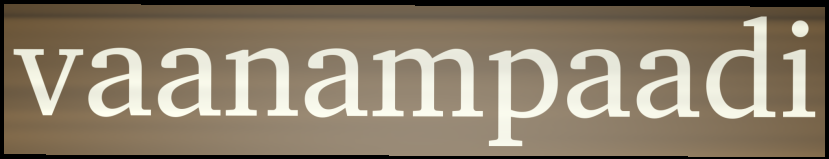
vaanampaadi